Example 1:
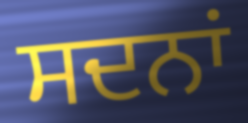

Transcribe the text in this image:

ਸਦਨਾਂ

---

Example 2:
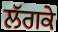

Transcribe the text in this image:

ਲੱਗਕੇ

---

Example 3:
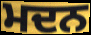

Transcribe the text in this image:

ਮਦਨ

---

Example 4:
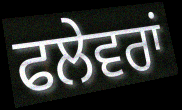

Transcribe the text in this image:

ਫਲੇਵਰਾਂ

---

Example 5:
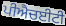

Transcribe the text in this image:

ਪੀਐਚਈਟੀ